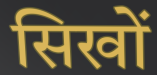
सिखों